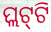
ପ୍ଲଟ୍‌ଟି